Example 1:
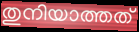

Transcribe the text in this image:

തുനിയാത്തത്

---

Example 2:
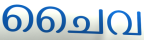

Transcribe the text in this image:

ചൈവ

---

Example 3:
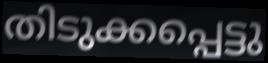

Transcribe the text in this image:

തിടുക്കപ്പെട്ടു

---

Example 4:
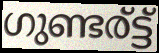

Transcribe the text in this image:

ഗുണ്ടര്ട്ട്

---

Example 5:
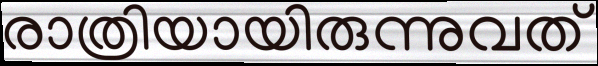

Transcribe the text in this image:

രാത്രിയായിരുന്നുവത്